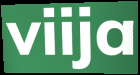
viija